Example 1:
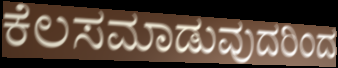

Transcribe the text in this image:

ಕೆಲಸಮಾಡುವುದರಿಂದ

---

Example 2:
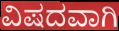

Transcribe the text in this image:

ವಿಷದವಾಗಿ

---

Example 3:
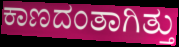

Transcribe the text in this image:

ಕಾಣದಂತಾಗಿತ್ತು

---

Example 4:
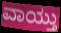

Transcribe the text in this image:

ವಾಯ್ತು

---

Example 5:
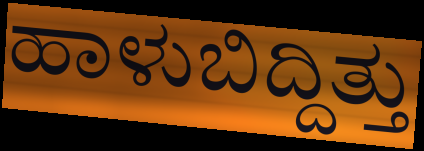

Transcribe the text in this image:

ಹಾಳುಬಿದ್ದಿತ್ತು